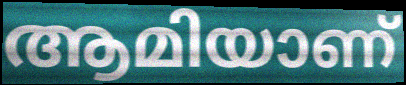
ആമിയാണ്